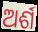
ଅର୍ଶ